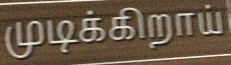
முடிக்கிறாய்